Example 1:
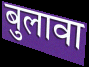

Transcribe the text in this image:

बुलावा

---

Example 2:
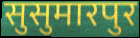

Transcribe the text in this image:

सुसुमारपुर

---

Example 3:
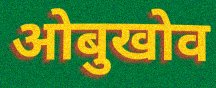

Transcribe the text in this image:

ओबुखोव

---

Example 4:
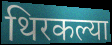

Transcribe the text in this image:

थिरकल्या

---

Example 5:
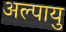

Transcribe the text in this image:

अल्पायु